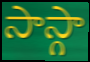
సాస్గా